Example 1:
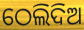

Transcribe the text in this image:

ଠେଲିଦିଅ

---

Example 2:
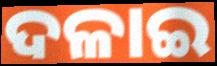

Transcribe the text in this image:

ଦଳାଇ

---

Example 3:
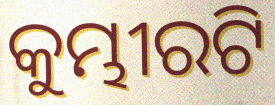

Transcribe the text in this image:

କୁମ୍ଭୀରଟି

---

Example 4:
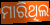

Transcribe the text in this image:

ମାରିଥିଲ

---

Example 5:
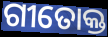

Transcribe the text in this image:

ଗୀତୋକ୍ତ